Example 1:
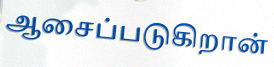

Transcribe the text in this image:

ஆசைப்படுகிறான்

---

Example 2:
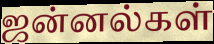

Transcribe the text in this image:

ஜன்னல்கள்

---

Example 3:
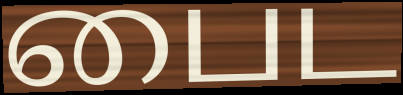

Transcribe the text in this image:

பைட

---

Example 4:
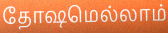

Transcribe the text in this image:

தோஷமெல்லாம்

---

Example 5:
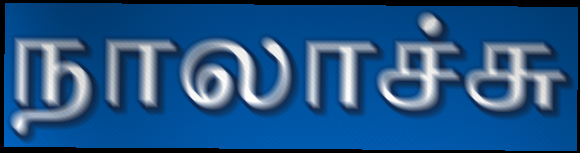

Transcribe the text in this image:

நாலாச்சு